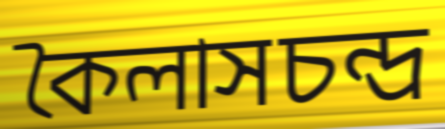
কৈলাসচন্দ্র